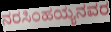
ನರಸಿಂಹಯ್ಯನವರ